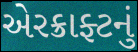
એરક્રાફ્ટનું